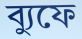
ব্যুফে